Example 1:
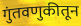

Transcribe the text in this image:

गुंतवणुकीतून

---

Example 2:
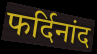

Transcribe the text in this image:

फर्दिनांद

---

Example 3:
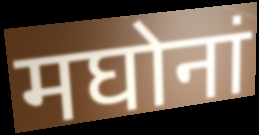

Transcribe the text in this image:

मघोनां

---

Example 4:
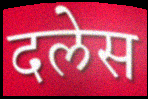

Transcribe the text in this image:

दलेस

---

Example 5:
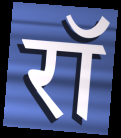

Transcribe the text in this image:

रॉ